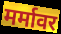
मर्मावर